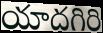
యాదగిరి